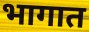
भागात